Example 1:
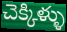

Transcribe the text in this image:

చెక్కిళ్ళు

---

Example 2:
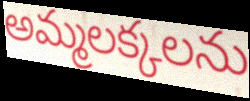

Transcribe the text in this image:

అమ్మలక్కలను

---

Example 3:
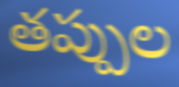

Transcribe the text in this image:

తప్పుల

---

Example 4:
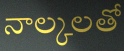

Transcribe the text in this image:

నాల్కలతో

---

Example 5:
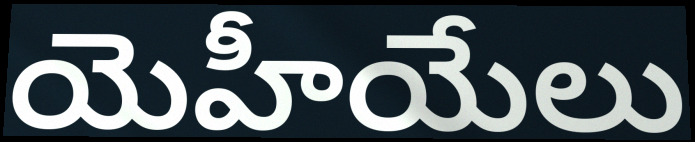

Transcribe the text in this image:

యెహీయేలు